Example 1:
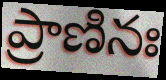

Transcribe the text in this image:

ప్రాణినః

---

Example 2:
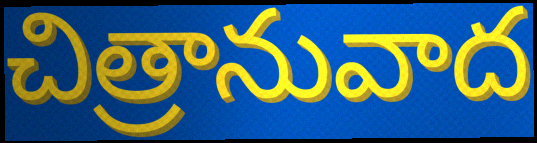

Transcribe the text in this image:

చిత్రానువాద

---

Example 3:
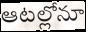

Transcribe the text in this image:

ఆటల్లోనూ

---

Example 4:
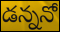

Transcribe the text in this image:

డన్ననో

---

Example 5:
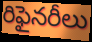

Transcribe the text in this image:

రిఫైనరీలు